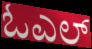
ಓಎಲ್